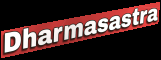
Dharmasastra